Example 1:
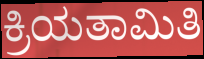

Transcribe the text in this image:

ಕ್ರಿಯತಾಮಿತಿ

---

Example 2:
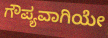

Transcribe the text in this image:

ಗೌಪ್ಯವಾಗಿಯೇ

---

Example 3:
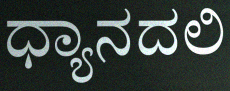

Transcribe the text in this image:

ಧ್ಯಾನದಲಿ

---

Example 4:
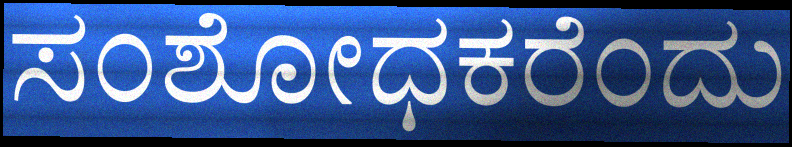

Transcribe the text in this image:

ಸಂಶೋಧಕರೆಂದು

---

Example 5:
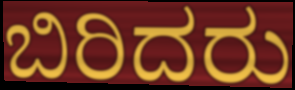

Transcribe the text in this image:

ಬಿರಿದರು